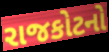
રાજકોટનો